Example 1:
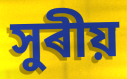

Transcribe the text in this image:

সুৰীয়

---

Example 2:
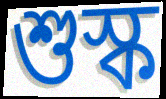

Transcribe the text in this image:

শুস্ক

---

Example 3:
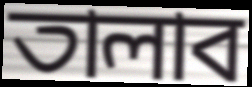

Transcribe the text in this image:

তালাব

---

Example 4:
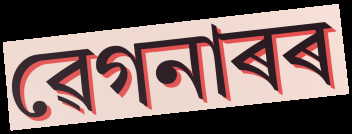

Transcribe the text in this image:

ৱেগনাৰৰ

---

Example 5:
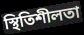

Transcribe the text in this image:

স্থিতিশীলতা